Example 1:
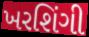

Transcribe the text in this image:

ખરશિંગી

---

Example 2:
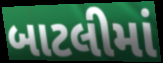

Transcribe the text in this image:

બાટલીમાં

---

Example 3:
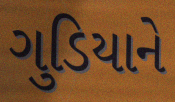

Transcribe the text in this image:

ગુડિયાને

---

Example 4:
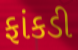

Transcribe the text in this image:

ફાંકડી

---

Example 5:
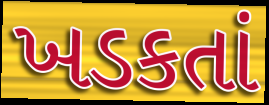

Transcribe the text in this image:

ખડકતાં